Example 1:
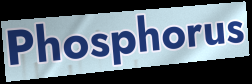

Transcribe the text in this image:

Phosphorus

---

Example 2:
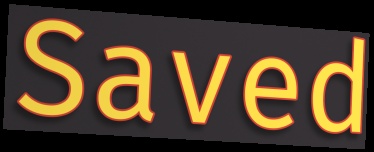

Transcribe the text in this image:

Saved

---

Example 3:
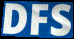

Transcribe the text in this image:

DFS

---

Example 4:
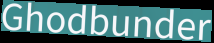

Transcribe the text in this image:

Ghodbunder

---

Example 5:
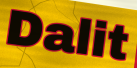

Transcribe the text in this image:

Dalit